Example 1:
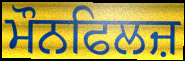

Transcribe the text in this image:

ਮੌਨਫਿਲਜ਼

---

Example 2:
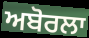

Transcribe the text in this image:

ਅਬੋਰਲਾ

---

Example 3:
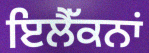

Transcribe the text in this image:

ਇਲੈੱਕਨਾਂ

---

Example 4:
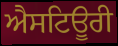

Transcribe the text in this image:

ਐਸਟਿਊਰੀ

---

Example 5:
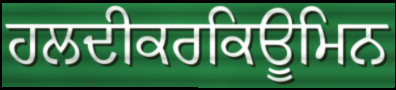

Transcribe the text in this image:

ਹਲਦੀਕਰਕਿਊਮਿਨ